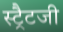
स्ट्रैटजी